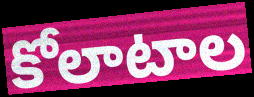
కోలాటాల